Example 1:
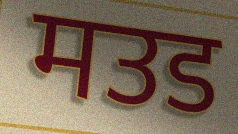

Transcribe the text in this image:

मउड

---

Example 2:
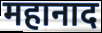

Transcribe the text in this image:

महानाद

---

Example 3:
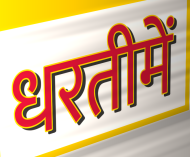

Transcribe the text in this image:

धरतीमें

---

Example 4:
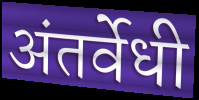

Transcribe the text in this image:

अंतर्वेधी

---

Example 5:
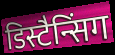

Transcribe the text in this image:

डिस्टैन्सिंग